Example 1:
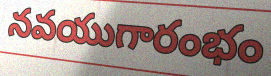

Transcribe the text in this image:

నవయుగారంభం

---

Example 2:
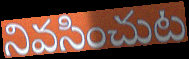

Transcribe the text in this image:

నివసించుట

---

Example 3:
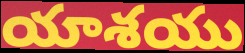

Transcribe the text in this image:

యాశయు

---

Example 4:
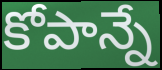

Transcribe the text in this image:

కోపాన్నే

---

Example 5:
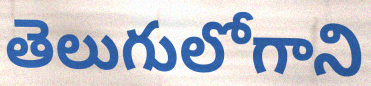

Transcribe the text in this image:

తెలుగులోగాని